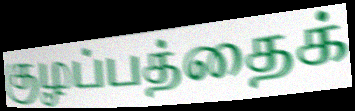
குழப்பத்தைக்